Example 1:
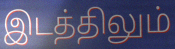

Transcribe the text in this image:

இடத்திலும்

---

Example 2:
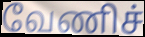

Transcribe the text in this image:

வேணிச்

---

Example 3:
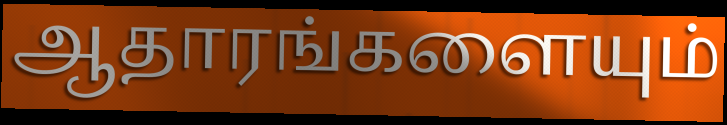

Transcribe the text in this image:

ஆதாரங்களையும்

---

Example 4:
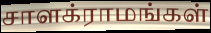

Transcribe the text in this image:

சாளக்ராமங்கள்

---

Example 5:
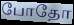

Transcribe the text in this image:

போதோ